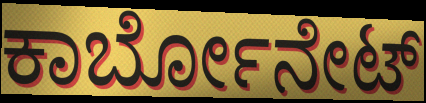
ಕಾರ್ಬೋನೇಟ್